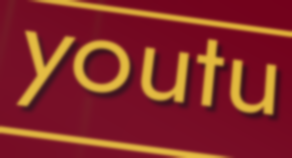
youtu